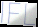
IFL